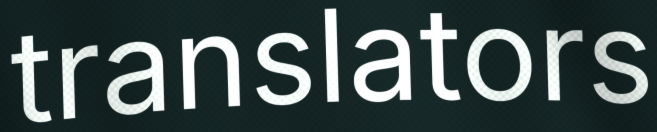
translators